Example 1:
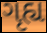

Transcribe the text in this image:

ગૃહ્ય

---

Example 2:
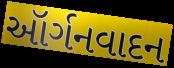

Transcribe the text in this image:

ઑર્ગનવાદન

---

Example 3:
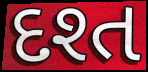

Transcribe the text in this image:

દશ્ત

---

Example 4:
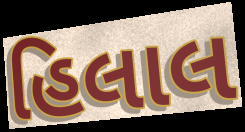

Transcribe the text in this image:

હિલાલ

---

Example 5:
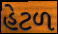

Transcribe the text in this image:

હેટળ